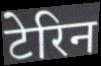
टेरिन